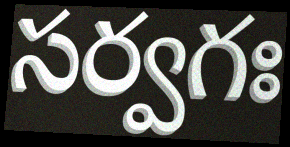
సర్వగః